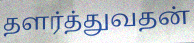
தளர்த்துவதன்